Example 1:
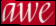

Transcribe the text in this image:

awe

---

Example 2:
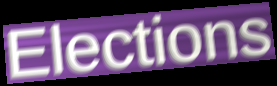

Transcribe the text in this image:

Elections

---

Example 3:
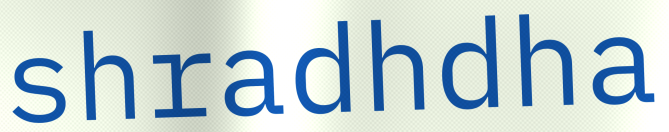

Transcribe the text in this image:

shradhdha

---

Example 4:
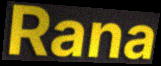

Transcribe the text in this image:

Rana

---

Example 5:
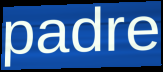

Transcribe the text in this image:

padre